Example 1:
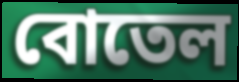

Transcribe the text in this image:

বোতেল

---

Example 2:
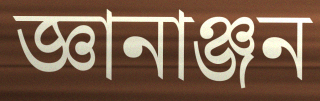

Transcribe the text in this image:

জ্ঞানাঞ্জন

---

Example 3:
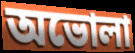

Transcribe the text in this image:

অভোলা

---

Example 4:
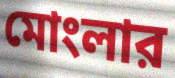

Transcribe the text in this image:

মোংলার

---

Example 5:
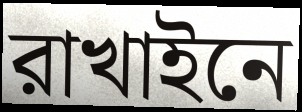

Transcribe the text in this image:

রাখাইনে